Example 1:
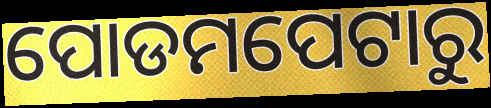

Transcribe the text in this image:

ପୋଡମପେଟାରୁ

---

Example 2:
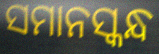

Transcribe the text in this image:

ସମାନସ୍କନ୍ଧ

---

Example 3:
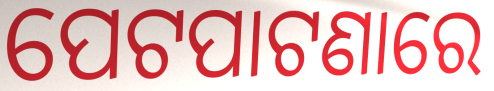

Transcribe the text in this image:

ପେଟପାଟଣାରେ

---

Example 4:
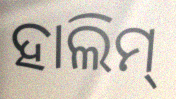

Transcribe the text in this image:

ହାଲିମ୍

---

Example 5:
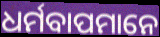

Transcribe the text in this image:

ଧର୍ମବାପମାନେ